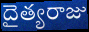
దైత్యరాజు